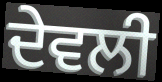
ਦੇਵਲੀ